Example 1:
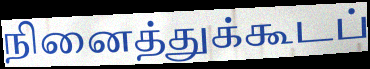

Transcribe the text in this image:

நினைத்துக்கூடப்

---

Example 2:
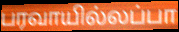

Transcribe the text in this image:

பரவாயில்லப்பா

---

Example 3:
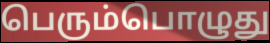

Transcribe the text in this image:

பெரும்பொழுது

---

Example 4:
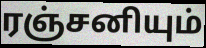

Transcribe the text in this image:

ரஞ்சனியும்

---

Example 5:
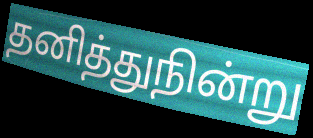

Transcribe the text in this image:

தனித்துநின்று